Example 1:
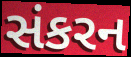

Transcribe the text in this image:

સંકરન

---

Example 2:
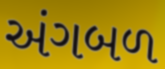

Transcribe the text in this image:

અંગબળ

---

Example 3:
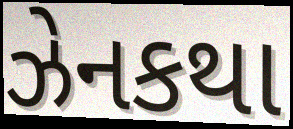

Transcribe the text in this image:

ઝેનકથા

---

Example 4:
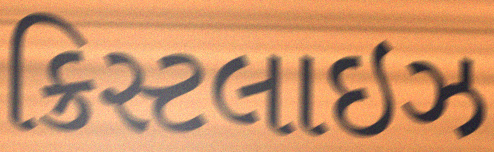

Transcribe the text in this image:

ક્રિસ્ટલાઇઝ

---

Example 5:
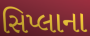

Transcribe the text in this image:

સિપ્લાના